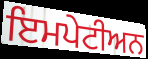
ਇਮਪੇਟੀਅਨ